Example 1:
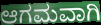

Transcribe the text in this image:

ಆಗಮವಾಗಿ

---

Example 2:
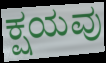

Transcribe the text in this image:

ಕ್ಷಯವು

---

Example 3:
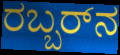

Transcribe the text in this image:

ರಬ್ಬರ್‌ನ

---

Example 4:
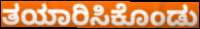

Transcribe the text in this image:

ತಯಾರಿಸಿಕೊಂಡು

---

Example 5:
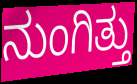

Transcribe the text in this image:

ನುಂಗಿತ್ತು